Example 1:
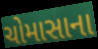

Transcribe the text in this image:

ચોમાસાના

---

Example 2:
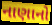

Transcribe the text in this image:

નાણાનો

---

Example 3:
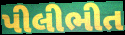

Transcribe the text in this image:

પીલીભીત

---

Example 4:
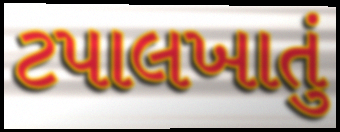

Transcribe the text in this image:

ટપાલખાતું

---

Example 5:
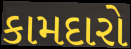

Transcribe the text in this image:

કામદારો